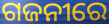
ଗଜନୀରେ